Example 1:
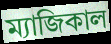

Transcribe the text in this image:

ম্যাজিকাল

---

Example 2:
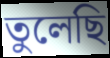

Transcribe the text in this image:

তুলেছি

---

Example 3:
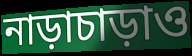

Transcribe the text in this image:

নাড়াচাড়াও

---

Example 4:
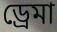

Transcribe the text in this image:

ড্রেমা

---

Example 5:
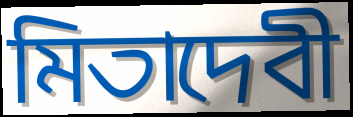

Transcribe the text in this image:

মিতাদেবী